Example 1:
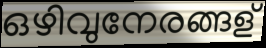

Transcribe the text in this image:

ഒഴിവുനേരങ്ങള്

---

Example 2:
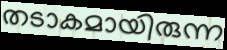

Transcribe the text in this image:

തടാകമായിരുന്ന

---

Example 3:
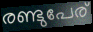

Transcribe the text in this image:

രണ്ടുപേര്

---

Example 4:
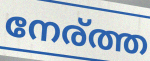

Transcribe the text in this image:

നേര്ത്ത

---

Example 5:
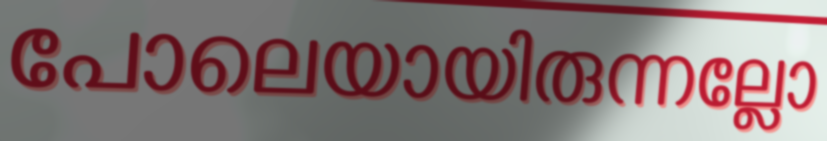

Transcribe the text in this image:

പോലെയായിരുന്നല്ലോ